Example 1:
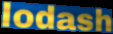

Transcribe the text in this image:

lodash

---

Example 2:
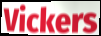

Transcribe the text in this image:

Vickers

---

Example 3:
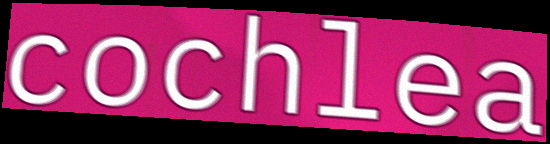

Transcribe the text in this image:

cochlea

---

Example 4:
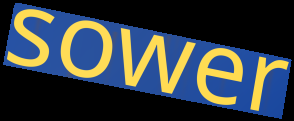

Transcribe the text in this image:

sower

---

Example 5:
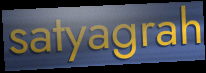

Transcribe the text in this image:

satyagrah